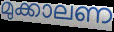
മുക്കാലണ